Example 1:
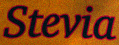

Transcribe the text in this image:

Stevia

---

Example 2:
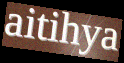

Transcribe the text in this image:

aitihya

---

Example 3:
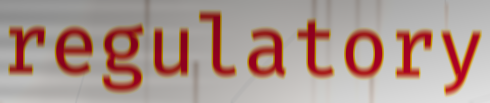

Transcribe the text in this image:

regulatory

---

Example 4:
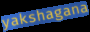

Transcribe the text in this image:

yakshagana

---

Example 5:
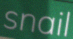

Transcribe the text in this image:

snail